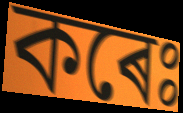
কৰেঃ